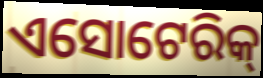
ଏସୋଟେରିକ୍